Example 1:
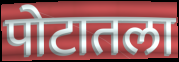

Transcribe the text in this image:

पोटातला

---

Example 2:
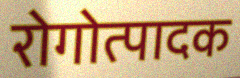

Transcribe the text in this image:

रोगोत्पादक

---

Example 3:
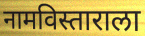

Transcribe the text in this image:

नामविस्ताराला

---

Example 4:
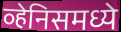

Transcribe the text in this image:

व्हेनिसमध्ये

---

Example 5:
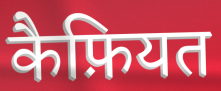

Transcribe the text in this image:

कैफ़ियत